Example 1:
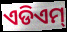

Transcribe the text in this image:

ଏଡିଏମ୍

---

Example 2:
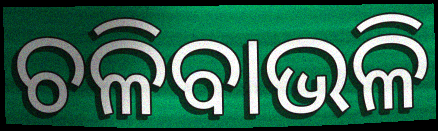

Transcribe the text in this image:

ଚଳିବାଭଳି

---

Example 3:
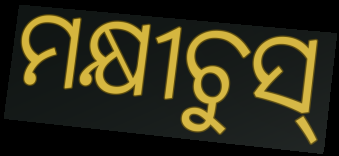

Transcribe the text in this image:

ମକ୍ଷୀଚୁସ୍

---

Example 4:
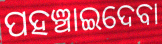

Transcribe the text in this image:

ପହଞ୍ଚାଇଦେବା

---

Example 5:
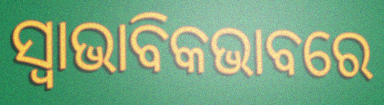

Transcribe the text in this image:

ସ୍ୱାଭାବିକଭାବରେ